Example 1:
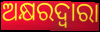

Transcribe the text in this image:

ଅକ୍ଷରଦ୍ଵାରା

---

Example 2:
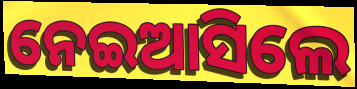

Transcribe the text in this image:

ନେଇଆସିଲେ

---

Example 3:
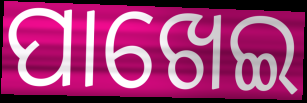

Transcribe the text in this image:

ପାଖେଇ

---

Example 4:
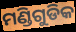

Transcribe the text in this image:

ମଣ୍ଡିଗୁଡିକ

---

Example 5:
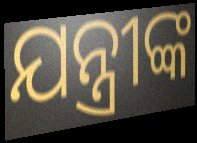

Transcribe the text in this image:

ଯନ୍ତ୍ରୀଙ୍କ